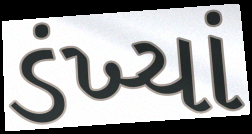
ડંખ્યાં